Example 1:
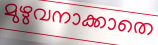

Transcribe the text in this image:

മുഴുവനാക്കാതെ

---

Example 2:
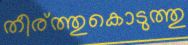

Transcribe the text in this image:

തീര്ത്തുകൊടുത്തു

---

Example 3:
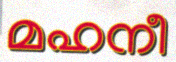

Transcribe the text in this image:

മഹനീ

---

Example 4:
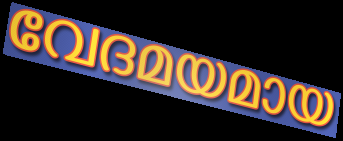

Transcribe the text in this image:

വേദമയമായ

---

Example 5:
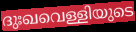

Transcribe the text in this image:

ദുഃഖവെള്ളിയുടെ